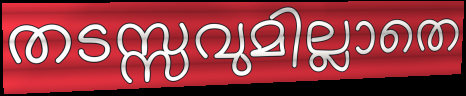
തടസ്സവുമില്ലാതെ